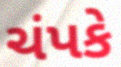
ચંપકે